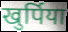
खुर्पिया